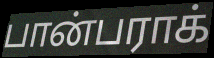
பான்பராக்